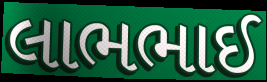
લાભભાઈ